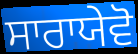
ਸਾਰਾਯੇਵੋ